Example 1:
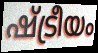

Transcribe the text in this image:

ഷ്ട്രീയം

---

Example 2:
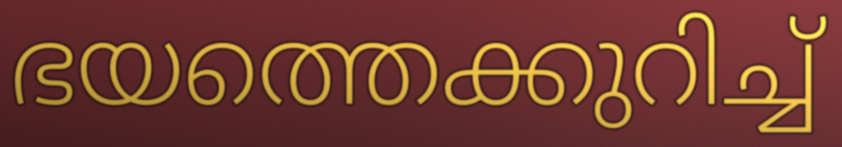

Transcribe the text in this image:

ഭയത്തെക്കുറിച്ച്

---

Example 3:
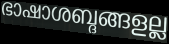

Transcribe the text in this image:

ഭാഷാശബ്ദങ്ങളല്ല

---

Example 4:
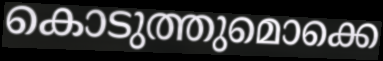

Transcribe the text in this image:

കൊടുത്തുമൊക്കെ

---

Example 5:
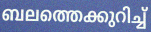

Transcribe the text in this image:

ബലത്തെക്കുറിച്ച്